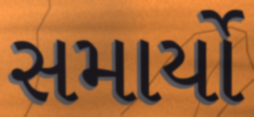
સમાર્યો